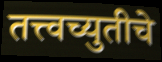
तत्त्वच्युतीचे